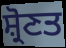
ਸ਼੍ਰੋਣਤ